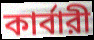
কার্বারী